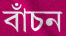
বাঁচন